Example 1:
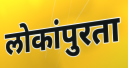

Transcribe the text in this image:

लोकांपुरता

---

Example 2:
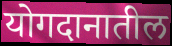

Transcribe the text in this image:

योगदानातील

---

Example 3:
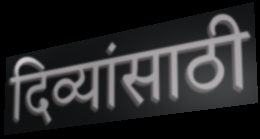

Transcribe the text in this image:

दिव्यांसाठी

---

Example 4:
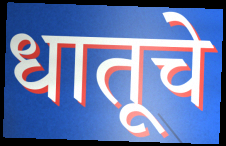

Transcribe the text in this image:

धातूचे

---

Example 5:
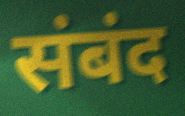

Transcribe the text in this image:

संबंद